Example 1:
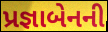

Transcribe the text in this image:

પ્રજ્ઞાબેનની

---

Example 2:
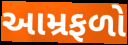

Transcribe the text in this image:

આમ્રફળો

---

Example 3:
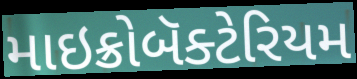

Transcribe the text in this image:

માઇક્રોબૅક્ટેરિયમ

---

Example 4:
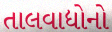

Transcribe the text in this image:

તાલવાદ્યોનો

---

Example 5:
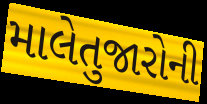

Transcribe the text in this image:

માલેતુજારોની